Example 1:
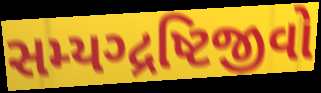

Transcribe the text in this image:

સમ્યગ્દ્રષ્ટિજીવો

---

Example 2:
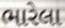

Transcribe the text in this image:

ભારેલા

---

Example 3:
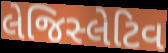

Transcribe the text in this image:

લેજિસ્લેટિવ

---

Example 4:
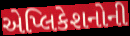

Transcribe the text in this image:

એપ્લિકેશનોની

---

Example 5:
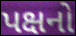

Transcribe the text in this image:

પક્ષનો